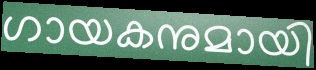
ഗായകനുമായി